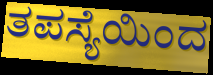
ತಪಸ್ಯೆಯಿಂದ